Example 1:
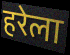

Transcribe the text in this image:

हरेला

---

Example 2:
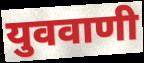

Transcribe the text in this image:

युववाणी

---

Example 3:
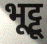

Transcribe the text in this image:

भूट्टू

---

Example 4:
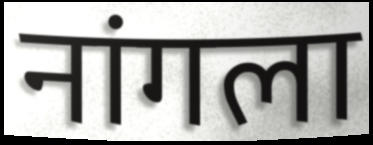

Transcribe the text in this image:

नांगला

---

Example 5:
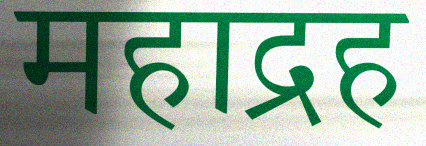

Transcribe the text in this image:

महाद्रह